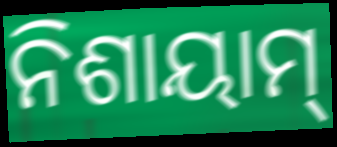
ନିଶାୟାମ୍